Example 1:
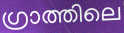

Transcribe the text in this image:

ഗ്രാത്തിലെ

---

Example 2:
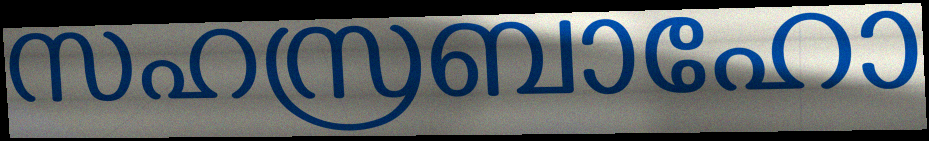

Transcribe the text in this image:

സഹസ്രബാഹോ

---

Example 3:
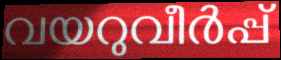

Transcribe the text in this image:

വയറുവീർപ്പ്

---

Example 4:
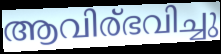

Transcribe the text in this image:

ആവിര്ഭവിച്ചു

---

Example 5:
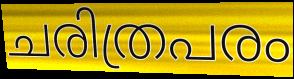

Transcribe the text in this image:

ചരിത്രപരം